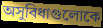
অসুবিধাগুলোকে